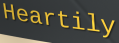
Heartily